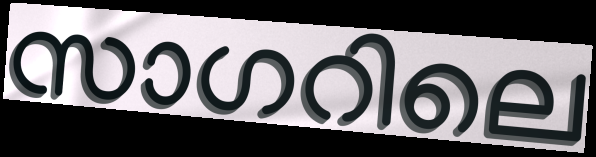
സാഗറിലെ